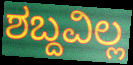
ಶಬ್ದವಿಲ್ಲ